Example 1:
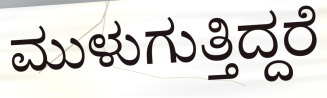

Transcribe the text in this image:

ಮುಳುಗುತ್ತಿದ್ದರೆ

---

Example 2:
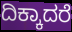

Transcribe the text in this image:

ದಿಕ್ಕಾದರೆ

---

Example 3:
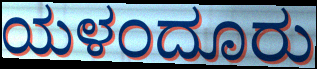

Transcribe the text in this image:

ಯಳಂದೂರು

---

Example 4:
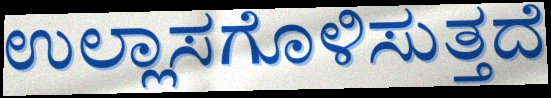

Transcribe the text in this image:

ಉಲ್ಲಾಸಗೊಳಿಸುತ್ತದೆ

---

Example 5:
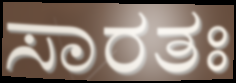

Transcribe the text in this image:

ಸಾರತಃ